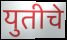
युतीचे